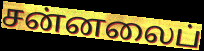
சன்னலைப்